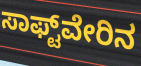
ಸಾಫ್ಟ್‌ವೇರಿನ